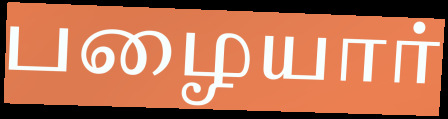
பழையார்